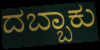
ದಬ್ಬಾಕು